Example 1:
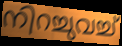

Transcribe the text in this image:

നിറച്ചുവച്ച്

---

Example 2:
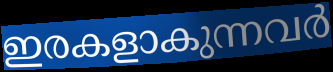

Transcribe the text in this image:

ഇരകളാകുന്നവർ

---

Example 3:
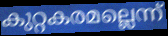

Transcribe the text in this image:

കുറ്റകരമല്ലെന്ന്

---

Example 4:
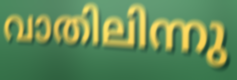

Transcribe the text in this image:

വാതിലിന്നു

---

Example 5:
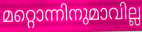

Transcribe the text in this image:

മറ്റൊന്നിനുമാവില്ല